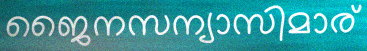
ജൈനസന്യാസിമാര്